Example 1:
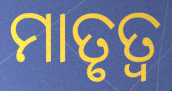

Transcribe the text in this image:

ମାତୃତ୍ୱ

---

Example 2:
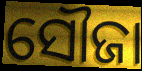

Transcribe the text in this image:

ସୌଜା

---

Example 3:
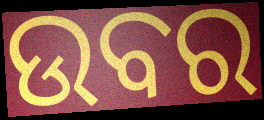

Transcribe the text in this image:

ଉବର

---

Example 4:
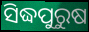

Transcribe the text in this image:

ସିଦ୍ଧପୁରୁଷ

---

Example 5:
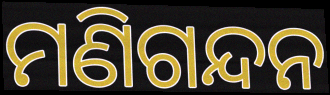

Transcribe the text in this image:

ମଣିଗନ୍ଦନ